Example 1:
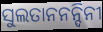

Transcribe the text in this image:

ସୁଲତାନନନ୍ଦିନୀ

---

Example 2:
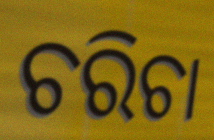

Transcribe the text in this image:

ଚରିଚା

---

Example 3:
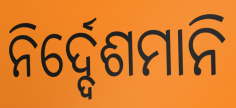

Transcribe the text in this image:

ନିର୍ଦ୍ଦେଶମାନି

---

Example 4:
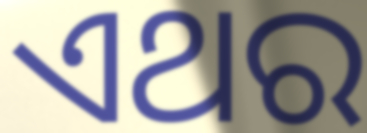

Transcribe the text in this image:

ଏଥର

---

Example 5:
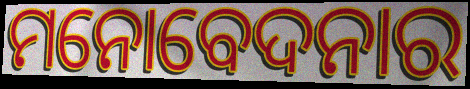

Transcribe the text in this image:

ମନୋବେଦନାର